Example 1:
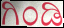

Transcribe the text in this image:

ಗಿಂಡಿ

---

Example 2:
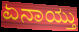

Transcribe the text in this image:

ಏನಾಯ್ತು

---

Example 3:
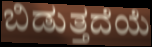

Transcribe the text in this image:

ಬಿಡುತ್ತದೆಯೆ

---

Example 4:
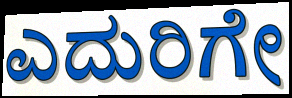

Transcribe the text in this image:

ಎದುರಿಗೇ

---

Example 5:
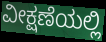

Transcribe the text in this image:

ವೀಕ್ಷಣೆಯಲ್ಲಿ